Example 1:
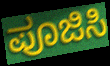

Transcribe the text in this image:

ಪೂಜಿಸಿ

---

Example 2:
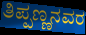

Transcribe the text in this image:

ತಿಪ್ಪಣ್ಣನವರ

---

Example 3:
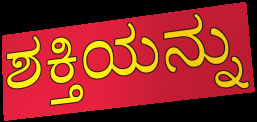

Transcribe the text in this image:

ಶಕ್ತಿಯನ್ನು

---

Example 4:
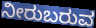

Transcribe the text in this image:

ನೀರುಬರುವ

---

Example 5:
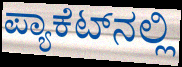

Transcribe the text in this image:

ಪ್ಯಾಕೆಟ್‍ನಲ್ಲಿ